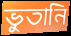
ভুতানি